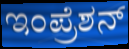
ಇಂಪ್ರೆಶನ್